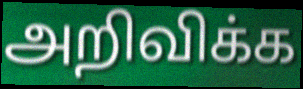
அறிவிக்க